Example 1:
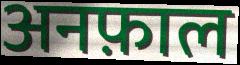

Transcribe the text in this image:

अनफ़ाल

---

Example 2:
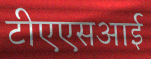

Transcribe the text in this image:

टीएएसआई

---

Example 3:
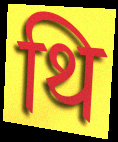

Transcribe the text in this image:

थि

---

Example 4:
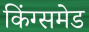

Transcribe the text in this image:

किंग्समेड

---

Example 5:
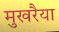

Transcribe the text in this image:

मुखरैया